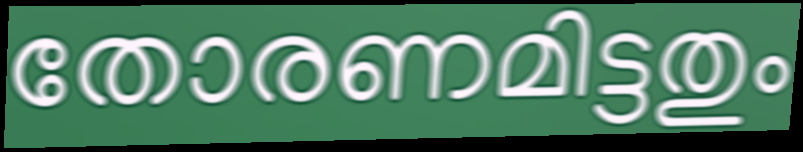
തോരണമിട്ടതും